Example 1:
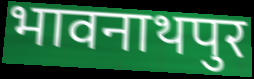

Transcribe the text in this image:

भावनाथपुर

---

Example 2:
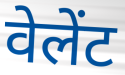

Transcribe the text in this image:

वेलेंट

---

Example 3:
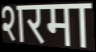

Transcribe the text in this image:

शरमा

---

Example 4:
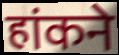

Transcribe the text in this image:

हांकने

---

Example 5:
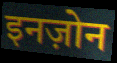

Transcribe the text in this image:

इनज़ोन